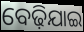
ବେଢ଼ିଯାଇ